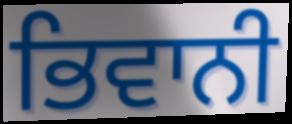
ਭਿਵਾਨੀ